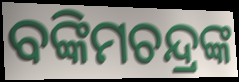
ବଙ୍କିମଚନ୍ଦ୍ରଙ୍କ